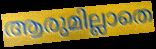
ആരുമില്ലാതെ